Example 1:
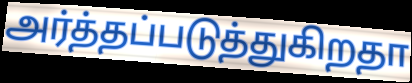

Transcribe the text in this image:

அர்த்தப்படுத்துகிறதா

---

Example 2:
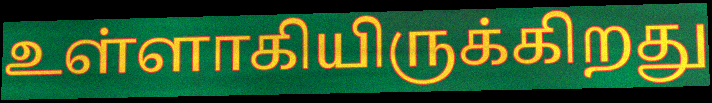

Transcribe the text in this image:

உள்ளாகியிருக்கிறது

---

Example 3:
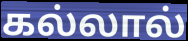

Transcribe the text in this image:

கல்லால்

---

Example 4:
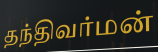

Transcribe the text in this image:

தந்திவர்மன்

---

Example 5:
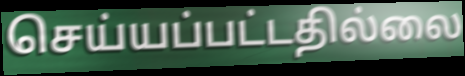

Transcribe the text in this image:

செய்யப்பட்டதில்லை